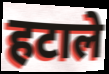
हटाले